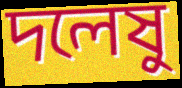
দলেষু